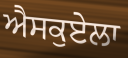
ਐਸਕੁਏਲਾ